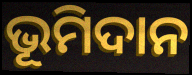
ଭୂମିଦାନ